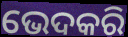
ଭେଦକରି